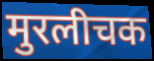
मुरलीचक